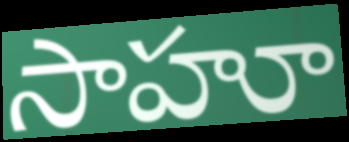
సాహూ